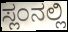
ಸ್ಲಂನಲ್ಲಿ